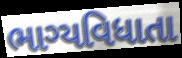
ભાગ્યવિધાતા